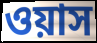
ওয়াস